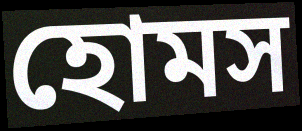
হোমস